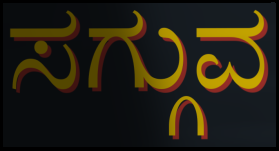
ಸಗ್ಗುವ